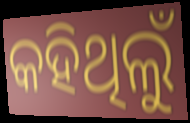
କହିଥିଲୁଁ